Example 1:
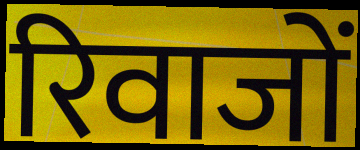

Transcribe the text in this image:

रिवाजों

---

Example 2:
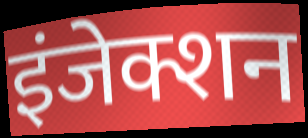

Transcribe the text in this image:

इंजेक्शन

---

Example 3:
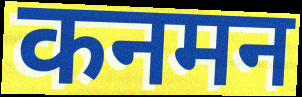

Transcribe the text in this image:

कनमन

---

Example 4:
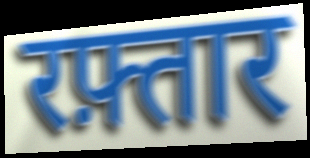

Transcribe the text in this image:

रफ़्तार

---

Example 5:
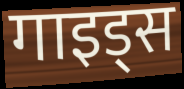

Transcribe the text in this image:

गाइड्स